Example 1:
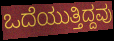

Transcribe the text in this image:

ಒದೆಯುತ್ತಿದ್ದವು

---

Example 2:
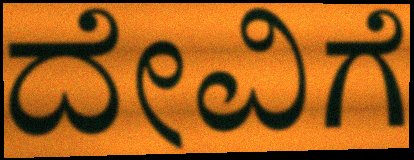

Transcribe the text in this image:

ದೇವಿಗೆ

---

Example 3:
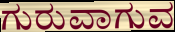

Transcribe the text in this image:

ಗುರುವಾಗುವ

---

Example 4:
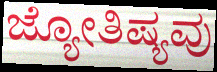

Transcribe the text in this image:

ಜ್ಯೋತಿಷ್ಯವು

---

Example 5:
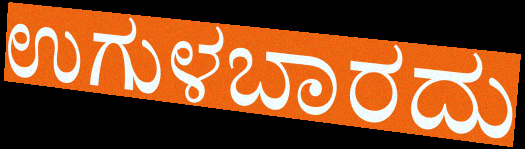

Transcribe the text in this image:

ಉಗುಳಬಾರದು